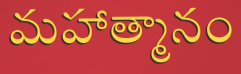
మహాత్మానం